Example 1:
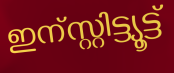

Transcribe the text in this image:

ഇന്സ്റ്റിട്ട്യൂട്ട്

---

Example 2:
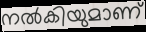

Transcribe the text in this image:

നൽകിയുമാണ്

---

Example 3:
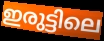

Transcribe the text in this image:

ഇരുട്ടിലെ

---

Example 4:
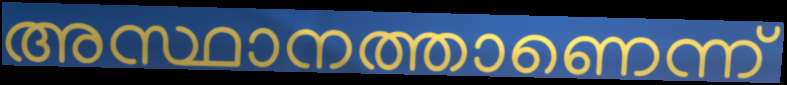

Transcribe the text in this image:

അസ്ഥാനത്താണെന്ന്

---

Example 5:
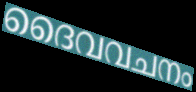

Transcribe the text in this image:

ദൈവവചനം